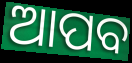
ଆପବ